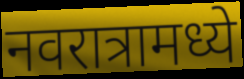
नवरात्रामध्ये